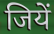
जियें